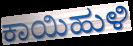
ಕಾಯಿಹುಳಿ